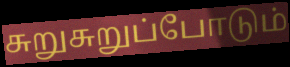
சுறுசுறுப்போடும்